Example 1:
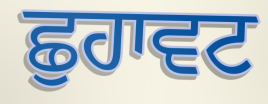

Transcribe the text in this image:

ਛੁਹਾਵਟ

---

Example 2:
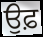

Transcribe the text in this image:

ਉਫ਼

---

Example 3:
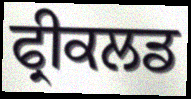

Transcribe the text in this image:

ਫ੍ਰੀਕਲਡ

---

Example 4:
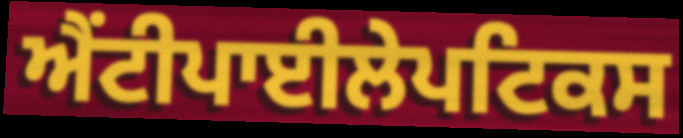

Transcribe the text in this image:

ਐਂਟੀਪਾਈਲੇਪਟਿਕਸ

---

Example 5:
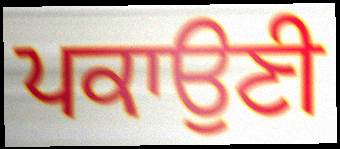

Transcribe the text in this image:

ਪਕਾਉਣੀ